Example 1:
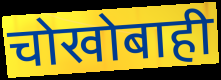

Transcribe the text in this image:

चोखोबाही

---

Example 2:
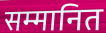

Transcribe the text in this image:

सम्मानित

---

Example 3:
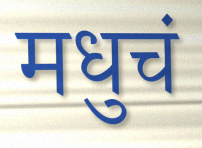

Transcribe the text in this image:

मधुचं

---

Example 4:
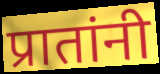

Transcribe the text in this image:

प्रातांनी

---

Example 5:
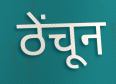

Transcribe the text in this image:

ठेंचून